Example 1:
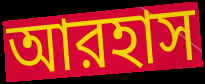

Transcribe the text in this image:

আরহাস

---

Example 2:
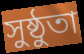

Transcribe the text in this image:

সুষ্ঠুতা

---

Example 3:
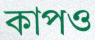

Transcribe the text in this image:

কাপও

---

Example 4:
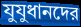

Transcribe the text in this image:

যুযুধানদের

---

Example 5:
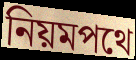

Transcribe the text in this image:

নিয়মপথে